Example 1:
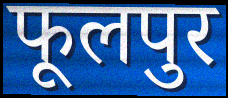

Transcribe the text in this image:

फूलपुर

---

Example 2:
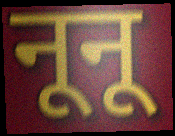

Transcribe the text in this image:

नूनू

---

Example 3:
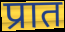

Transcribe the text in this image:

प्रात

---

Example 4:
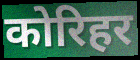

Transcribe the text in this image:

कोरिहर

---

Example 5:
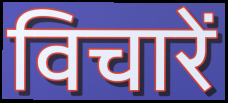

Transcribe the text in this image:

विचारें